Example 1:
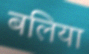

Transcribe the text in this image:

बलिया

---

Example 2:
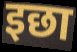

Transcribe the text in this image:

इछा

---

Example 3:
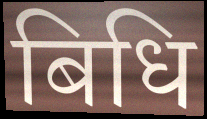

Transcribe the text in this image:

बिधि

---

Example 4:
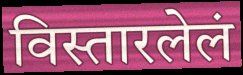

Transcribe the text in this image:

विस्तारलेलं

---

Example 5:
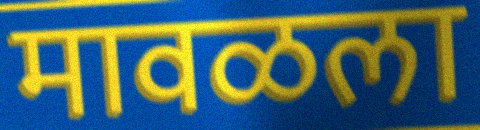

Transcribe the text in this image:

मावळला